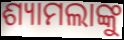
ଶ୍ୟାମଲାଙ୍କୁ